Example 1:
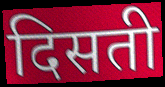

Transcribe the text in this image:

दिसती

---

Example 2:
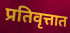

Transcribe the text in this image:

प्रतिवृत्तात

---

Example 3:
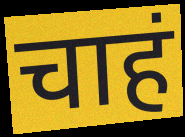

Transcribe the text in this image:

चाहं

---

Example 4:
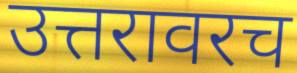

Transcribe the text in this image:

उत्तरावरच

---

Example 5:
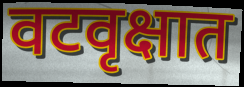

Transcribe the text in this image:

वटवृक्षात